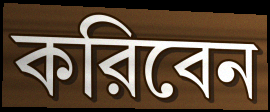
করিবেন